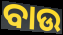
ବାଉ